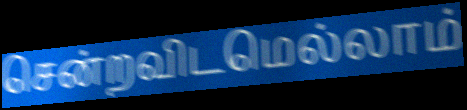
சென்றவிடமெல்லாம்